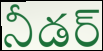
నీడర్